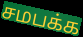
சமபக்க